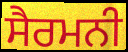
ਸੈਰਮਨੀ